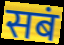
सबं